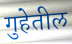
गुहेतील